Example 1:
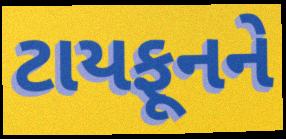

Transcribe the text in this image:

ટાયફૂનને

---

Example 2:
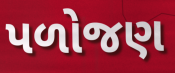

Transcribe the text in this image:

પળોજણ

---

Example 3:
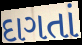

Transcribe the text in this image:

દાગતાં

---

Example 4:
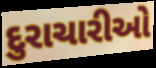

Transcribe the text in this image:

દુરાચારીઓ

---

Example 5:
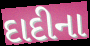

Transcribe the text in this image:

દાદીના